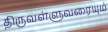
திருவள்ளுவரையும்